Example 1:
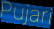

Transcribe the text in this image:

Pujari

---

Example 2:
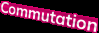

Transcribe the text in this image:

Commutation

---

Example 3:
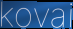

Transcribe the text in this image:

kovai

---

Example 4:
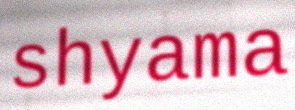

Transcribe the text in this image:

shyama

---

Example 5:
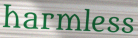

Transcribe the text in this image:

harmless